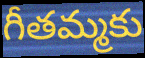
గీతమ్మకు